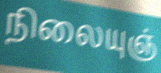
நிலையுஞ்